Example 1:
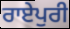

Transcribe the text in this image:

ਰਾਏਪੁਰੀ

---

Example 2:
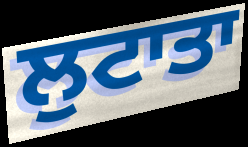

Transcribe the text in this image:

ਲੁਟਾਤਾ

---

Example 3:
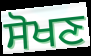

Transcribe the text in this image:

ਸੋਖਣ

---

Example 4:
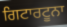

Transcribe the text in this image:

ਗਿਟਾਰਟੂਨਾ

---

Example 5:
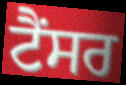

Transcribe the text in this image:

ਟੈਂਸਰ